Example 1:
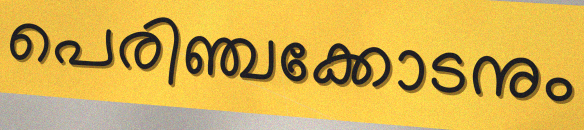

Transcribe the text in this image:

പെരിഞ്ചക്കോടനും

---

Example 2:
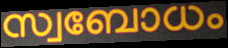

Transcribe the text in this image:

സ്വബോധം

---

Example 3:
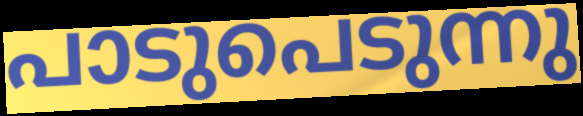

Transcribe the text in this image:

പാടുപെടുന്നു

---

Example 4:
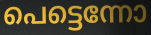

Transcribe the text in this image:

പെട്ടെന്നോ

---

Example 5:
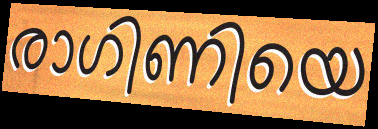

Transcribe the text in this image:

രാഗിണിയെ